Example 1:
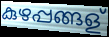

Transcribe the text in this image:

കുഴപ്പങ്ങള്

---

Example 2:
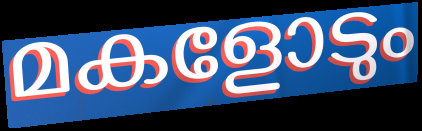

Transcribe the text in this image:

മകളോടും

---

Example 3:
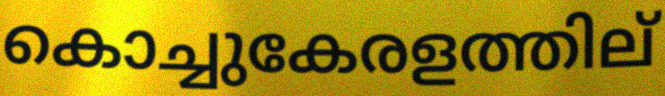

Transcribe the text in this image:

കൊച്ചുകേരളത്തില്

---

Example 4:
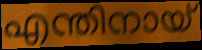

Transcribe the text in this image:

എന്തിനായ്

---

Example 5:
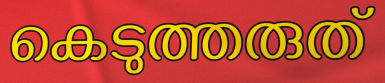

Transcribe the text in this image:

കെടുത്തരുത്